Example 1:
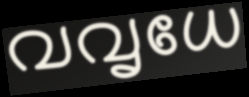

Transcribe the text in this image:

വവൃധേ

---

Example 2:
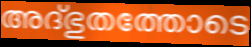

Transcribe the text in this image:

അദ്ഭുതത്തോടെ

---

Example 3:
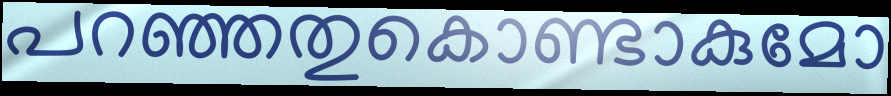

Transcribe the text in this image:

പറഞ്ഞതുകൊണ്ടാകുമോ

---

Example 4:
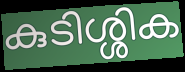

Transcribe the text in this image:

കുടിശ്ശിക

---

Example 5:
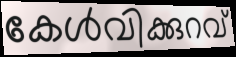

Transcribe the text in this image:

കേൾവിക്കുറവ്